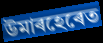
উমাৰহেৰেত